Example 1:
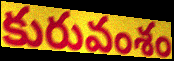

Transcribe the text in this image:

కురువంశం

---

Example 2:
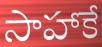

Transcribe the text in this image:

సాహాకే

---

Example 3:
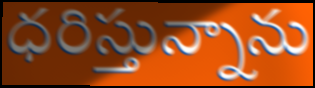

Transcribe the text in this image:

ధరిస్తున్నాను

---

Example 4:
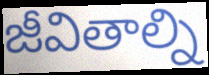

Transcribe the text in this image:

జీవితాల్ని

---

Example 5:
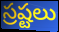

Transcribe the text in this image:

స్రష్టలు